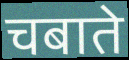
चबाते